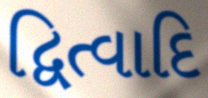
દ્વિત્વાદિ